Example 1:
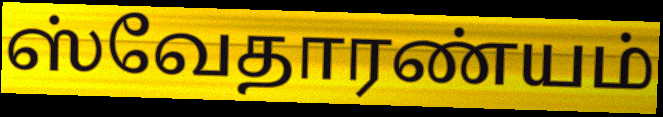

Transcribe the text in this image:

ஸ்வேதாரண்யம்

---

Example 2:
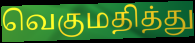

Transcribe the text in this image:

வெகுமதித்து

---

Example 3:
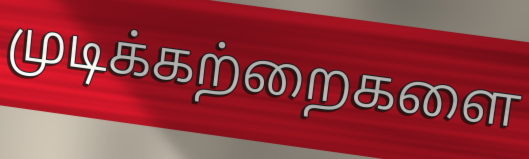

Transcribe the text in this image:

முடிக்கற்றைகளை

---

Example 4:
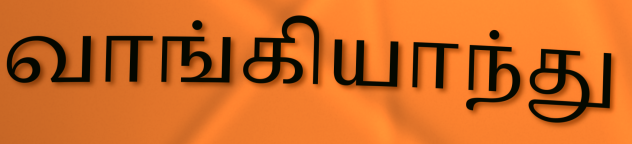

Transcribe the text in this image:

வாங்கியாந்து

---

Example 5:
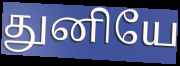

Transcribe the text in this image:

துனியே